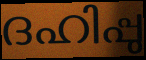
ദഹിപ്പു